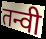
तन्वी